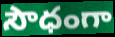
సౌధంగా